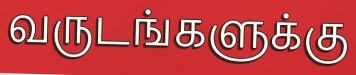
வருடங்களுக்கு